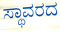
ಸ್ಥಾವರದ